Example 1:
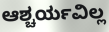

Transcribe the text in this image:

ಆಶ್ಚರ್ಯವಿಲ್ಲ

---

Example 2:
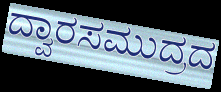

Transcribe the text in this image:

ದ್ವಾರಸಮುದ್ರದ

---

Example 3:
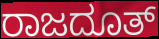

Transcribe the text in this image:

ರಾಜದೂತ್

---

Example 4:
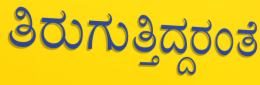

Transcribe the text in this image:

ತಿರುಗುತ್ತಿದ್ದರಂತೆ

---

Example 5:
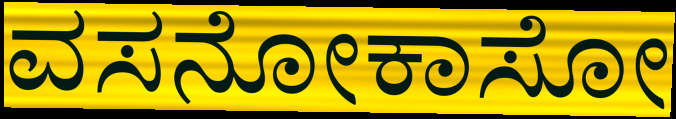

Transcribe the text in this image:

ವಸನೋಕಾಸೋ